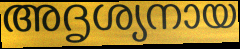
അദൃശ്യനായ